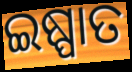
ଇଷ୍ପାତ